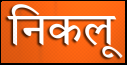
निकलू